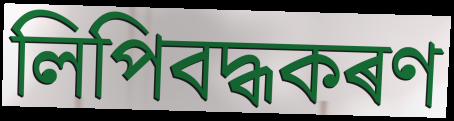
লিপিবদ্ধকৰণ